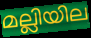
മല്ലിയില